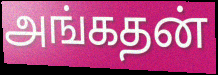
அங்கதன்